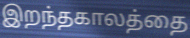
இறந்தகாலத்தை